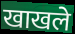
खाखले